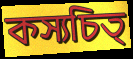
কস্যচিত্